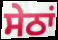
ਸੇਠਾਂ